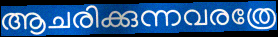
ആചരിക്കുന്നവരത്രേ